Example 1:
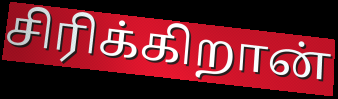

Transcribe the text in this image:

சிரிக்கிறான்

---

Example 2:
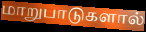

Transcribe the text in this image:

மாறுபாடுகளால்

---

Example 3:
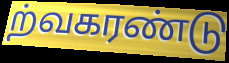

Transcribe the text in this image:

ற்வகரண்டு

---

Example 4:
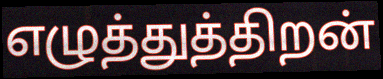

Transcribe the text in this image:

எழுத்துத்திறன்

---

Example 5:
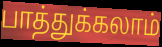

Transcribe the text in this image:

பாத்துக்கலாம்